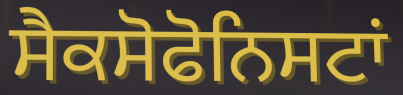
ਸੈਕਸੋਫੋਨਿਸਟਾਂ